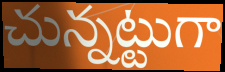
చున్నట్టుగా